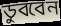
ডুববেন